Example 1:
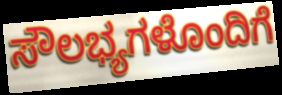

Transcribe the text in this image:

ಸೌಲಭ್ಯಗಳೊಂದಿಗೆ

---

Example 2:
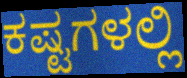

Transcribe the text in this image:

ಕಷ್ಟಗಳಲ್ಲಿ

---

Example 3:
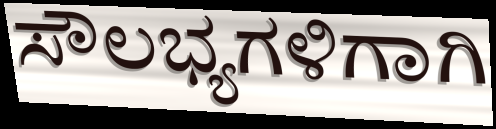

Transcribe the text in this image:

ಸೌಲಭ್ಯಗಳಿಗಾಗಿ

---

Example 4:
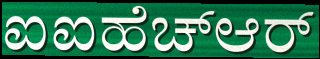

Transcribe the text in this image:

ಐಐಹೆಚ್ಆರ್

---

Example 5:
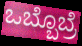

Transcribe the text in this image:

ಒಬ್ಬೊಬ್ರೆ